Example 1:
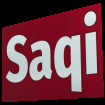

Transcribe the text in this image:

Saqi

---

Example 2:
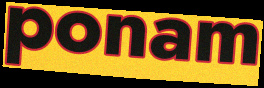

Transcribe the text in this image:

ponam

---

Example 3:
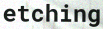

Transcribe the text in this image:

etching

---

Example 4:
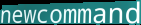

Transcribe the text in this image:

newcommand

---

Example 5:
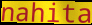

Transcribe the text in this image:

nahita